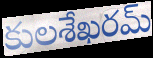
కులశేఖరమ్